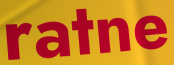
ratne